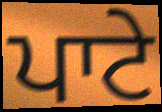
ਪਾਟੇ